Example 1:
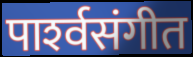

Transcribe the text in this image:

पार्श्‍वसंगीत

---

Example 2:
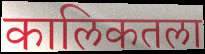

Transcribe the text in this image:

कालिकतला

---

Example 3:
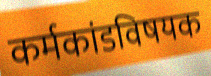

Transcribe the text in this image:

कर्मकांडविषयक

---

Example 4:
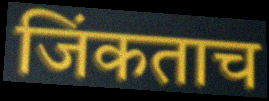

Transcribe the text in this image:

जिंकताच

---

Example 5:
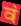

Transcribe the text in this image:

वं